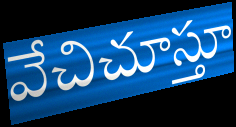
వేచిచూస్తూ